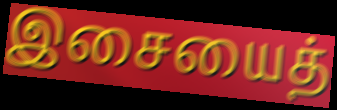
இசையைத்